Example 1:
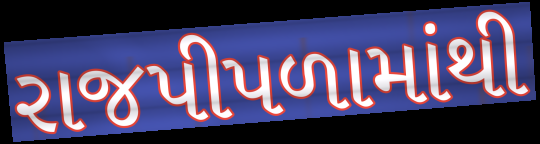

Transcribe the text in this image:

રાજપીપળામાંથી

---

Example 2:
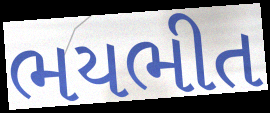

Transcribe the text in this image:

ભયભીત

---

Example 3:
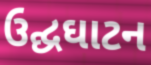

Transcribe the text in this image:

ઉદ્ઘઘાટન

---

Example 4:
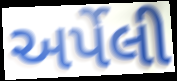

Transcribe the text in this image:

અર્પેલી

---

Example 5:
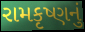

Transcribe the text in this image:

રામકૃષ્ણનું